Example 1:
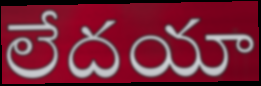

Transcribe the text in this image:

లేదయా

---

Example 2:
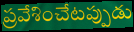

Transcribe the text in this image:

ప్రవేశించేటప్పుడు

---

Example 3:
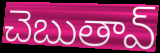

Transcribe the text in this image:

చెబుతావ్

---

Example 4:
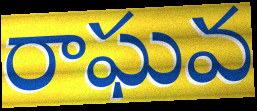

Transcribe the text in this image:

రాఘవ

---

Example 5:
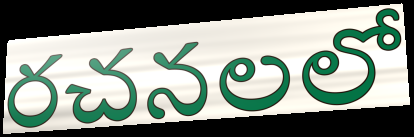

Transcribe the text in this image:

రచనలలో